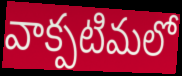
వాక్పటిమలో